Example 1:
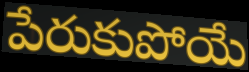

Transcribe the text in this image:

పేరుకుపోయే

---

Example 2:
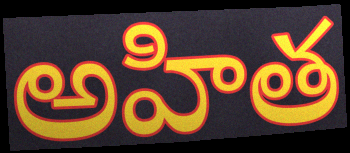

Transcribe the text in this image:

అహిత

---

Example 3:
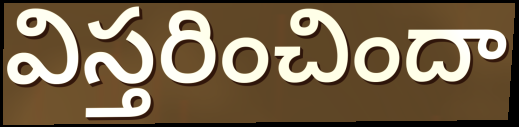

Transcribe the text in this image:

విస్తరించిందా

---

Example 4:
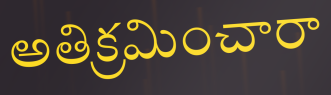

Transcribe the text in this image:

అతిక్రమించారా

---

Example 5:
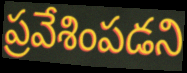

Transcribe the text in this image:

ప్రవేశింపడని